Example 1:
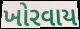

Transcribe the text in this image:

ખોરવાય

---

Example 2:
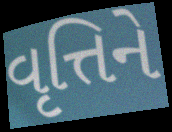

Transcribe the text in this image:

વૃત્તિને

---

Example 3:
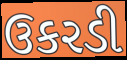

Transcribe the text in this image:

ઉકરડી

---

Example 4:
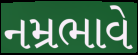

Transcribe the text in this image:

નમ્રભાવે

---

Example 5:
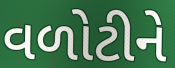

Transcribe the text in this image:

વળોટીને